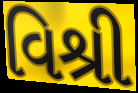
વિશ્રી